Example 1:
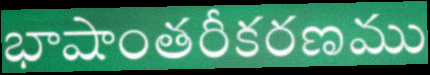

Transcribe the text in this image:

భాషాంతరీకరణము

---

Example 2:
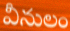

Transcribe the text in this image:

వీనులం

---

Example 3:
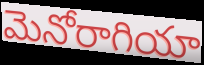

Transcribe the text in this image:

మెనోరాగియా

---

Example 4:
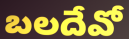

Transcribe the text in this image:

బలదేవో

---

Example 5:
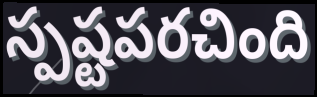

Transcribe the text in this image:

స్పష్టపరచింది